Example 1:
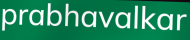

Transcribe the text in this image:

prabhavalkar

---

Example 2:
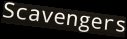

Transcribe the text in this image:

Scavengers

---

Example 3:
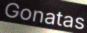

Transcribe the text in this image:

Gonatas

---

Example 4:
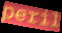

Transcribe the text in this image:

peril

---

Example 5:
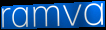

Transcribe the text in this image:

ramva